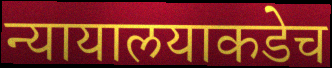
न्यायालयाकडेच